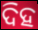
ଦିହ